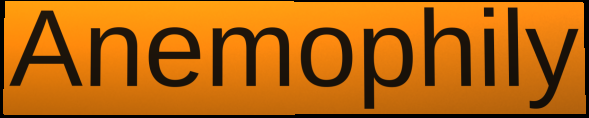
Anemophily